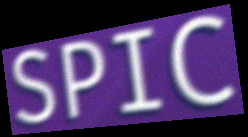
SPIC